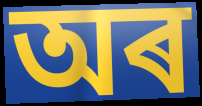
অৰ